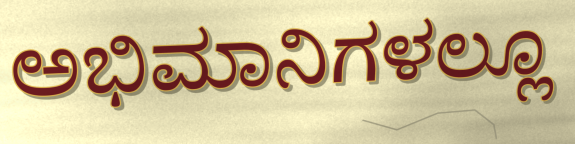
ಅಭಿಮಾನಿಗಳಲ್ಲೂ